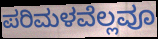
ಪರಿಮಳವೆಲ್ಲವೂ